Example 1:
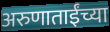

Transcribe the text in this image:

अरुणाताईंच्या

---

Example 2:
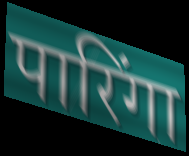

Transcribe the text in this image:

पारिंगा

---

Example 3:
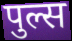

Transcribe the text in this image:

पुल्स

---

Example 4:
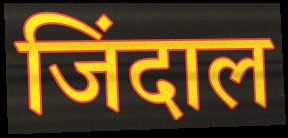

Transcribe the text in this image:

जिंदाल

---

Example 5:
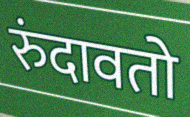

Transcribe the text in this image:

रुंदावतो